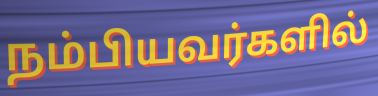
நம்பியவர்களில்